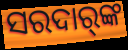
ସରଦାର୍‍ଙ୍କ